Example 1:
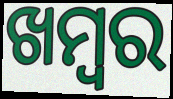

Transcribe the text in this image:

ଖମ୍ବର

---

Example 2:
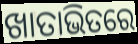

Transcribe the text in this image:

ଖାତାଭିତରେ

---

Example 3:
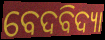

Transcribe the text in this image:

ବେଦବିଦ୍ୟା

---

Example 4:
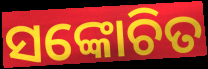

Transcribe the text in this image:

ସଙ୍କୋଚିତ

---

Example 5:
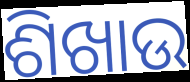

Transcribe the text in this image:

ଶିଖାଉ